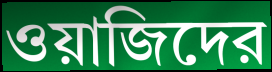
ওয়াজিদের